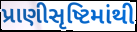
પ્રાણીસૃષ્ટિમાંથી